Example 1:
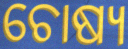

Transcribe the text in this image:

ଚୋଷ୍ୟ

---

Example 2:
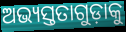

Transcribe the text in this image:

ଅଭ୍ୟସ୍ତତାଗୁଡ଼ାକୁ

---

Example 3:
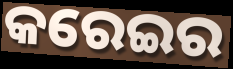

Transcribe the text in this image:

କରେଇର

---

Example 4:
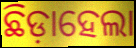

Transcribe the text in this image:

ଛିଡ଼ାହେଲା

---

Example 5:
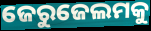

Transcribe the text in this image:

ଜେରୁଜେଲମକୁ